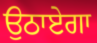
ਉਠਾਏਗਾ